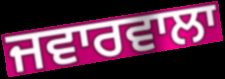
ਜਵਾਰਵਾਲਾ